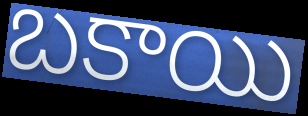
బకాయి